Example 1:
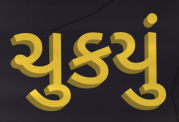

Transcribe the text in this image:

ચુકયું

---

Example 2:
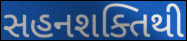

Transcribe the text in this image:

સહનશક્તિથી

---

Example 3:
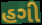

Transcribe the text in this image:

હગી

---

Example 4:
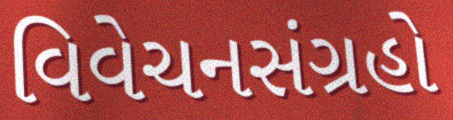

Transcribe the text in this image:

વિવેચનસંગ્રહો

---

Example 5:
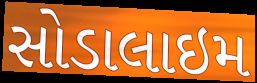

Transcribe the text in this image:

સોડાલાઇમ